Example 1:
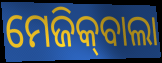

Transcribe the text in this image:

ମେଜିକ୍‍ବାଲା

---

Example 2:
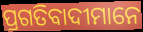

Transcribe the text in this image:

ପ୍ରଗତିବାଦୀମାନେ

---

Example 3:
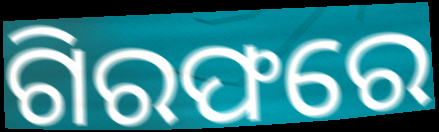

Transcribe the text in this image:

ଗିରଫରେ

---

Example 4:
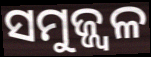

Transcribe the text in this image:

ସମୁଜ୍ଜ୍ୱଳ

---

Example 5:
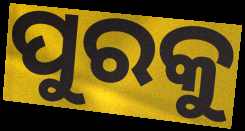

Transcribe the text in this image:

ପୁରକୁ